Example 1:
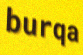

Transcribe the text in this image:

burqa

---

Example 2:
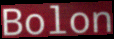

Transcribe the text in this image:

Bolon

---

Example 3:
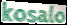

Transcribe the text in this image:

kosalo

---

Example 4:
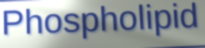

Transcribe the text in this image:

Phospholipid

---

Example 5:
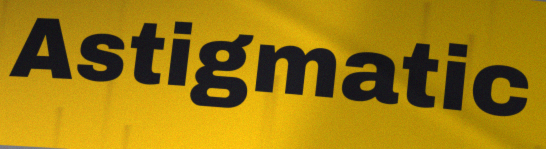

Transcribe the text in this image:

Astigmatic